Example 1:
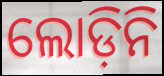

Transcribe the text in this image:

ଲୋଡ଼ିନି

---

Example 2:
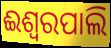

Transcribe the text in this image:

ଈଶ୍ୱରପାଲି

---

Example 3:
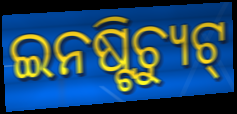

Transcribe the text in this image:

ଇନଷ୍ଟିଚ୍ୟୁଟ୍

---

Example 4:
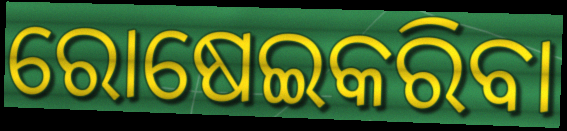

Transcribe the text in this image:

ରୋଷେଇକରିବା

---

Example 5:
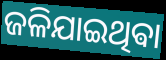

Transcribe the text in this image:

ଜଳିଯାଇଥିଵା